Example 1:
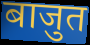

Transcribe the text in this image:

बाजुत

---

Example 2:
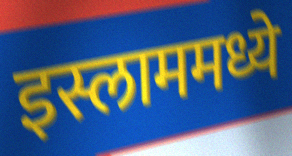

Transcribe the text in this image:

इस्लाममध्ये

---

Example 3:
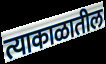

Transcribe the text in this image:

त्याकाळातील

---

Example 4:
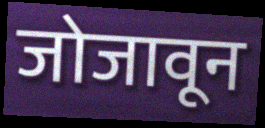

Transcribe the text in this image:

जोजावून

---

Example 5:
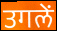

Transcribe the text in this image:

उगलें